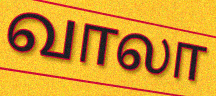
வாலா